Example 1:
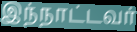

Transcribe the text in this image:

இந்நாட்டவர்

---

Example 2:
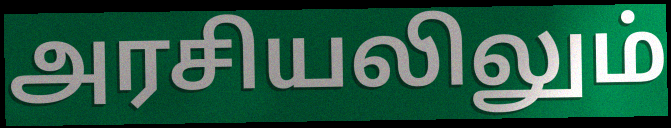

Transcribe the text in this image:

அரசியலிலும்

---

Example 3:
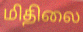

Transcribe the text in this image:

மிதிலை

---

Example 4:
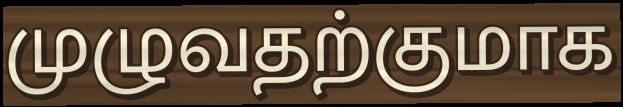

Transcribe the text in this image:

முழுவதற்குமாக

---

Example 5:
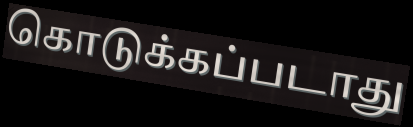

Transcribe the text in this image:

கொடுக்கப்படாது